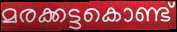
മരക്കട്ടകൊണ്ട്